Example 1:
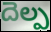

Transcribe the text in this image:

దెల్ప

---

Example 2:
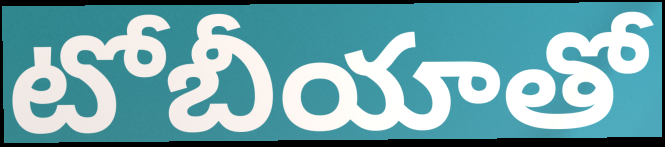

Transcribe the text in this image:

టోబీయాతో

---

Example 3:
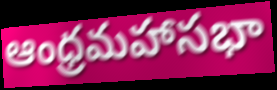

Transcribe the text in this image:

ఆంధ్రమహాసభా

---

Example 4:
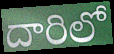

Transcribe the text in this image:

దారిలో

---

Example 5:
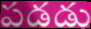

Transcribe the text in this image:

పడడు